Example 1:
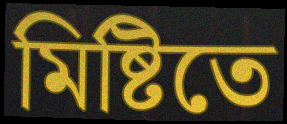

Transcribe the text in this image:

মিষ্টিতে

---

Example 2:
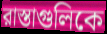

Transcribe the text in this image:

রাস্তাগুলিকে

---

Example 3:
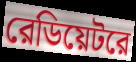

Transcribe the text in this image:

রেডিয়েটরে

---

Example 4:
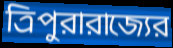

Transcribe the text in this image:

ত্রিপুরারাজ্যের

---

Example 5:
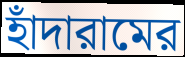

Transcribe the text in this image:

হাঁদারামের